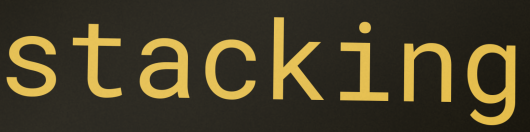
stacking